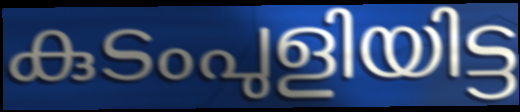
കുടംപുളിയിട്ട